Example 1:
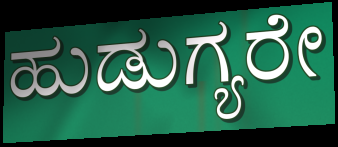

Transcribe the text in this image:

ಹುಡುಗ್ಯರೇ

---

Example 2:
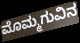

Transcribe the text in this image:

ಮೊಮ್ಮಗುವಿನ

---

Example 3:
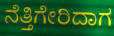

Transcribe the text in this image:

ನೆತ್ತಿಗೇರಿದಾಗ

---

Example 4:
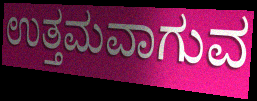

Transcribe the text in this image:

ಉತ್ತಮವಾಗುವ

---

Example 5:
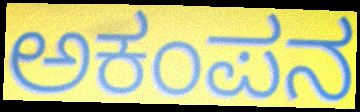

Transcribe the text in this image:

ಅಕಂಪನ